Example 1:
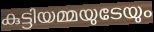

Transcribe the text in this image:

കുട്ടിയമ്മയുടേയും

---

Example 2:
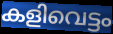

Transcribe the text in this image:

കളിവെട്ടം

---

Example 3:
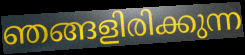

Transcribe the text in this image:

ഞങ്ങളിരിക്കുന്ന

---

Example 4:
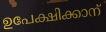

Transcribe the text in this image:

ഉപേക്ഷിക്കാന്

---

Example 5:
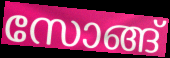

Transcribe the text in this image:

സോങ്ങ്